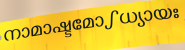
നാമാഷ്ടമോഽധ്യായഃ